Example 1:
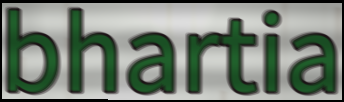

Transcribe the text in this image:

bhartia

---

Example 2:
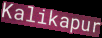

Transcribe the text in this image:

Kalikapur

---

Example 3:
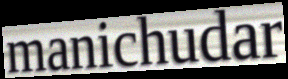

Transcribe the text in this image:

manichudar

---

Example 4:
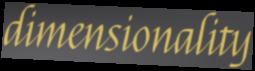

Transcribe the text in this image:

dimensionality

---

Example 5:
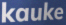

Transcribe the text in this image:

kauke